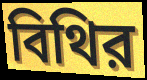
বিথির